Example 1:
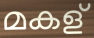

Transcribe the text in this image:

മകള്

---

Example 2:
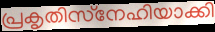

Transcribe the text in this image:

പ്രകൃതിസ്‌നേഹിയാക്കി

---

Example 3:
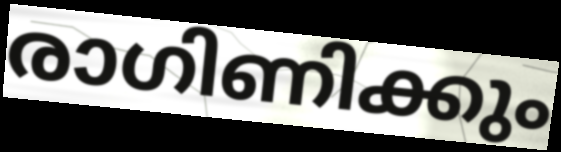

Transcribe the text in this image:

രാഗിണിക്കും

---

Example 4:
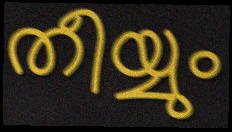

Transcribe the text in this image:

തീയ്യും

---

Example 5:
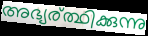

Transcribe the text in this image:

അഭ്യര്ത്ഥിക്കുന്നു